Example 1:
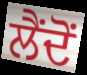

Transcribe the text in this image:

ਲੈਂਦੋਂ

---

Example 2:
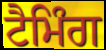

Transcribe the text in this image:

ਟੈਮਿੰਗ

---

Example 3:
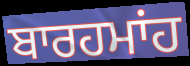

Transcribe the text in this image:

ਬਾਰਹਮਾਂਹ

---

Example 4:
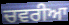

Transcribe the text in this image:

ਚਵਰੀਆ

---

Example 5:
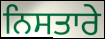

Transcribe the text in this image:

ਨਿਸਤਾਰੇ